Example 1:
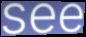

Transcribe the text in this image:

see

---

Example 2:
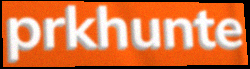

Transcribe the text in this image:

prkhunte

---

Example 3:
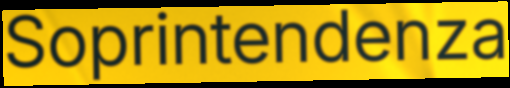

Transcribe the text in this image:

Soprintendenza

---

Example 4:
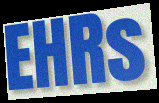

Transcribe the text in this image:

EHRs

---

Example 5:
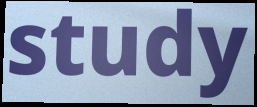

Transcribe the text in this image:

study